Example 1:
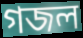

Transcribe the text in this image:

গজল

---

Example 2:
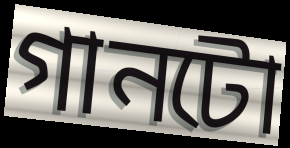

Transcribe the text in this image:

গানটো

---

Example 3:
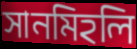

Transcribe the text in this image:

সানমিহলি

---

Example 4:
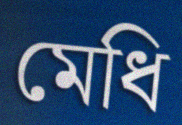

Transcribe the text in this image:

মেধি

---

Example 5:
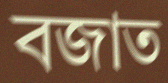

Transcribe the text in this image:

বজাত